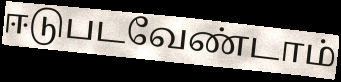
ஈடுபடவேண்டாம்